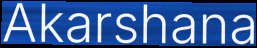
Akarshana